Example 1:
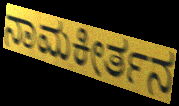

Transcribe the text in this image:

ನಾಮಕೀರ್ತನ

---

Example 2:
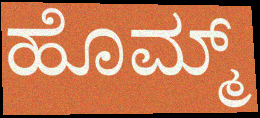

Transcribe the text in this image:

ಹೊಮ್ಮ್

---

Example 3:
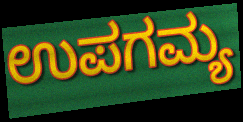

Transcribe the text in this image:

ಉಪಗಮ್ಯ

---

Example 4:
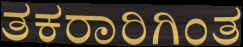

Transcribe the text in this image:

ತಕರಾರಿಗಿಂತ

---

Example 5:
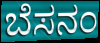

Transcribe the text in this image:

ಬೆಸನಂ